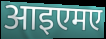
आइएमए